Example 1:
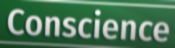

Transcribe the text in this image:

Conscience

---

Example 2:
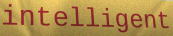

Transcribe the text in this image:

intelligent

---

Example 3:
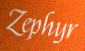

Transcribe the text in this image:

Zephyr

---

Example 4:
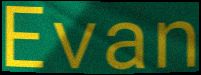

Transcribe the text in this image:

Evan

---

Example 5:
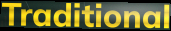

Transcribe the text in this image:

Traditional